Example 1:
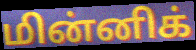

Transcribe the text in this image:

மின்னிக்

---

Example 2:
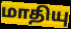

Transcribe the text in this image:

மாதியு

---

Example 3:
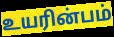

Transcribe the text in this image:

உயரின்பம்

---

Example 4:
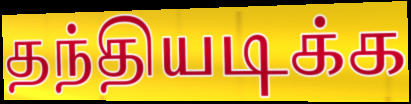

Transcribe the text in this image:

தந்தியடிக்க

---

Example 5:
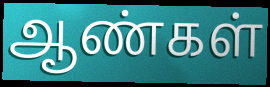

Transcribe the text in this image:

ஆண்கள்